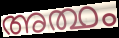
അത്ഥം